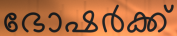
ഭോഷർക്ക്